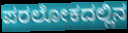
ಪರಲೋಕದಲ್ಲಿನ